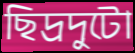
ছিদ্রদুটো